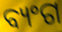
ବ୍ୟଂଗ